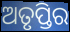
ଅତୃପ୍ତିର